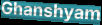
Ghanshyam